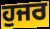
ਹੁਜਰ